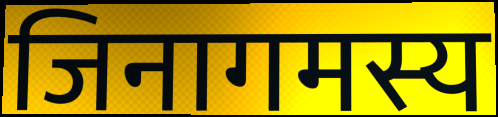
जिनागमस्य